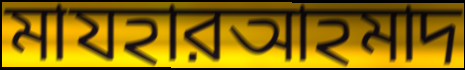
মাযহারআহমাদ